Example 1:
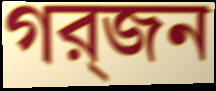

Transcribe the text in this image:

গর্‍জন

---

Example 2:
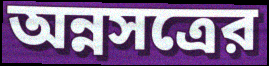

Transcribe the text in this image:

অন্নসত্রের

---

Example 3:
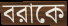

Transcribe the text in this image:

বরাকে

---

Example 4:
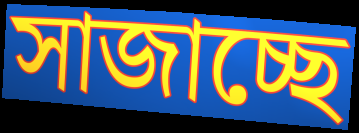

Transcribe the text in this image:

সাজাচ্ছে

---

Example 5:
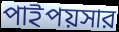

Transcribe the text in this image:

পাইপয়সার